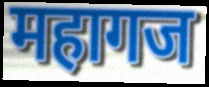
महागज